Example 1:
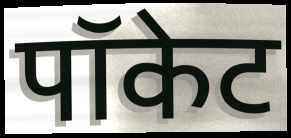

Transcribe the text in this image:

पॉकेट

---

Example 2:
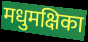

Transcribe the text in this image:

मधुमक्षिका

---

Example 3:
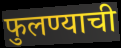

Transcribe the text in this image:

फुलण्याची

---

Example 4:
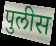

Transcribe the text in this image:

पुलीस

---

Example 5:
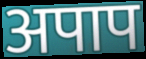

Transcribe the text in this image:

अपाप